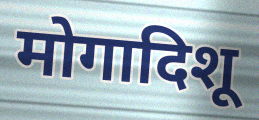
मोगादिशू